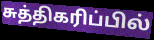
சுத்திகரிப்பில்